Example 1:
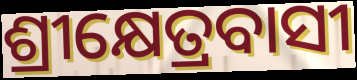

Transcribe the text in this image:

ଶ୍ରୀକ୍ଷେତ୍ରବାସୀ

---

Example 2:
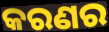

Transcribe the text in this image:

କରଣର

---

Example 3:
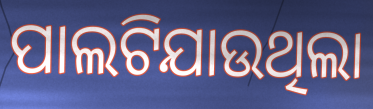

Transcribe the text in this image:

ପାଲଟିଯାଉଥିଲା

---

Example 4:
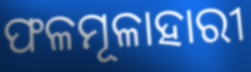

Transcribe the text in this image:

ଫଳମୂଳାହାରୀ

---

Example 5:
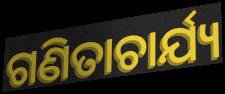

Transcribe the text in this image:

ଗଣିତାଚାର୍ଯ୍ୟ